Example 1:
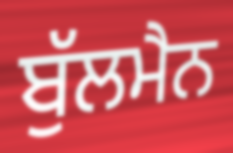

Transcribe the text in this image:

ਬੁੱਲਮੈਨ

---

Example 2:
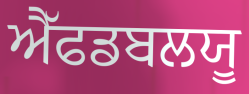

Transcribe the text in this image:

ਐੱਫਡਬਲਯੂ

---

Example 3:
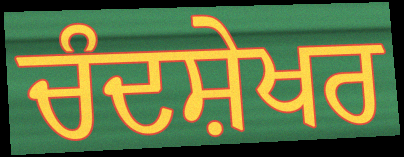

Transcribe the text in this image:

ਚੰਦਸ਼ੇਖਰ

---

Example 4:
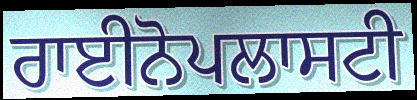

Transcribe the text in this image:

ਰਾਈਨੋਪਲਾਸਟੀ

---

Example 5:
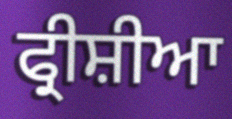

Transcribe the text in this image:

ਫ੍ਰੀਸ਼ੀਆ